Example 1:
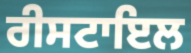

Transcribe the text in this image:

ਰੀਸਟਾਇਲ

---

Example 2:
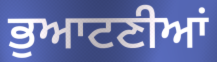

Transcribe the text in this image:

ਭੁਆਟਣੀਆਂ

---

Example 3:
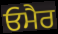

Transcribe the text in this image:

ਓਮੈਰ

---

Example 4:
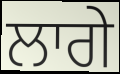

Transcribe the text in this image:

ਲਾਗੇ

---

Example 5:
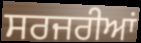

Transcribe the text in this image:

ਸਰਜਰੀਆਂ